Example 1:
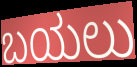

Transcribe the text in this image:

ಬಯಲು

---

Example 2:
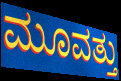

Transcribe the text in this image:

ಮೂವತ್ತು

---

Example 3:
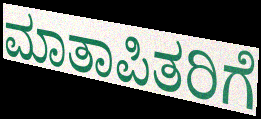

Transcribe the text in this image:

ಮಾತಾಪಿತರಿಗೆ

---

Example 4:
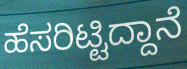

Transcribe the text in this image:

ಹೆಸರಿಟ್ಟಿದ್ದಾನೆ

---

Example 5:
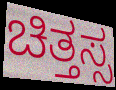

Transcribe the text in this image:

ಚಿತ್ತಸ್ಸ